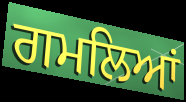
ਗਮਲਿਆਂ